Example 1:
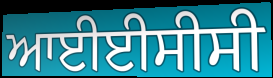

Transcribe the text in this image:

ਆਈਈਸੀਸੀ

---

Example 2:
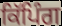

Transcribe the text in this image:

ਕਿੱਪਿੰਗ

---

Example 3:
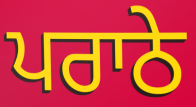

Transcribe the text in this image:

ਪਰਾਠੇ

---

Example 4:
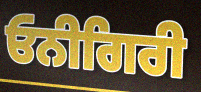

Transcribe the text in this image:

ਓਨੀਗਿਰੀ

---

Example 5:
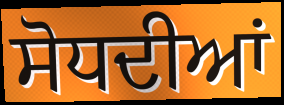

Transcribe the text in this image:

ਸੋਧਦੀਆਂ